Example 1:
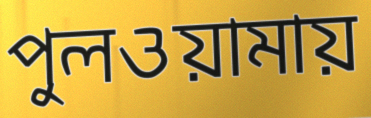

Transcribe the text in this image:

পুলওয়ামায়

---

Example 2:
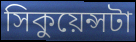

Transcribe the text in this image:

সিকুয়েন্সটা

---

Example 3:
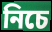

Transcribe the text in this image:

নিচে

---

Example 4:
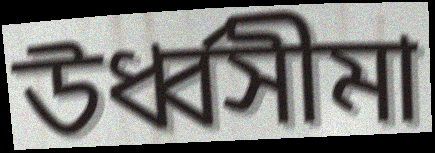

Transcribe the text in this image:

উর্ধ্বসীমা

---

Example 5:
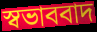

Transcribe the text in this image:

স্বভাববাদ